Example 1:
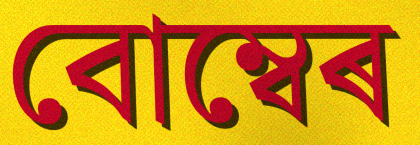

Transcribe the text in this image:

বোম্বেৰ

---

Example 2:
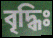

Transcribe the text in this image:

বৃদ্ধিঃ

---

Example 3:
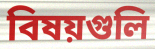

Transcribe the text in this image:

বিষয়গুলি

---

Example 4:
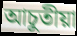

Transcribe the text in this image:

আচুতীয়া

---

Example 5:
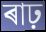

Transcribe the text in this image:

ৰাঢ়